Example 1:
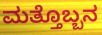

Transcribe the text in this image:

ಮತ್ತೊಬ್ಬನ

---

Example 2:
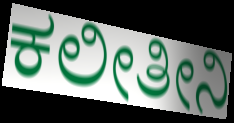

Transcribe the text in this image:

ಕಲೀತೀನಿ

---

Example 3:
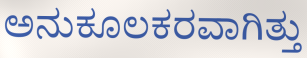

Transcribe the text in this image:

ಅನುಕೂಲಕರವಾಗಿತ್ತು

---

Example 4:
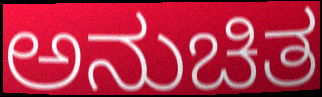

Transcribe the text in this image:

ಅನುಚಿತ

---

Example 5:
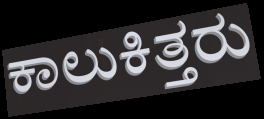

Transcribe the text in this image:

ಕಾಲುಕಿತ್ತರು